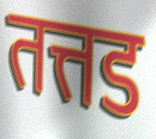
तत्तड